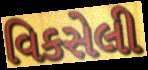
વિકસેલી